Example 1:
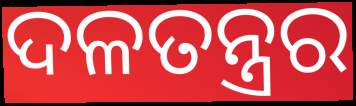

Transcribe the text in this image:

ଦଳତନ୍ତ୍ରର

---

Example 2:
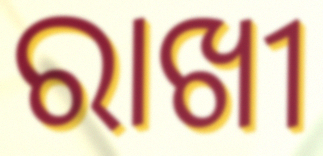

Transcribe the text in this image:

ରାଖୀ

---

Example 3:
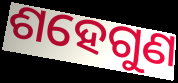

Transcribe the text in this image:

ଶହେଗୁଣ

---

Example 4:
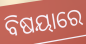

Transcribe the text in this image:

ବିଷୟାରେ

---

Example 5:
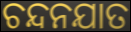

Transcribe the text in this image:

ଚନ୍ଦନଯାତ